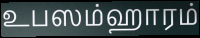
உபஸம்ஹாரம்